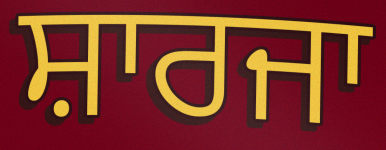
ਸ਼ਾਰਜਾ